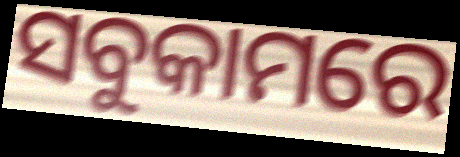
ସବୁକାମରେ